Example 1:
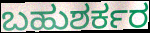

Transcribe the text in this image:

ಬಹುಶರ್ಕರ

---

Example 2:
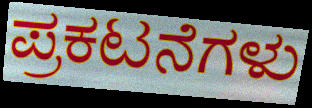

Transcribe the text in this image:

ಪ್ರಕಟನೆಗಳು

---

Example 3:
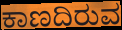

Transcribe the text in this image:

ಕಾಣದಿರುವ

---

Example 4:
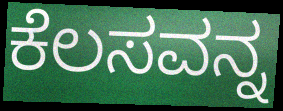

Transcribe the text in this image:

ಕೆಲಸವನ್ನ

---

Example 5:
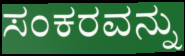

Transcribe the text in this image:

ಸಂಕರವನ್ನು